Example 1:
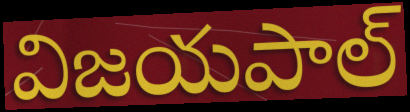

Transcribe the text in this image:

విజయపాల్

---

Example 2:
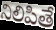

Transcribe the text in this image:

నిలిపితే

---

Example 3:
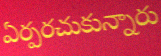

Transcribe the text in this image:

ఏర్పరచుకున్నారు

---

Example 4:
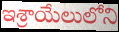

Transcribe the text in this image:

ఇశ్రాయేలులోని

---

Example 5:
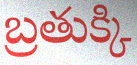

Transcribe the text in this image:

బ్రతుక్కి